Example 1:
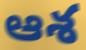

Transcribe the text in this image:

ఆశ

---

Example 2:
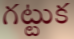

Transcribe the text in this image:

గట్టుక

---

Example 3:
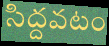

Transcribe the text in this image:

సిద్దవటం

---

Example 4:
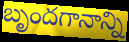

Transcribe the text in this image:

బృందగానాన్ని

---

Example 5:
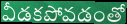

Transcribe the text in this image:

వీడకపోవడంతో